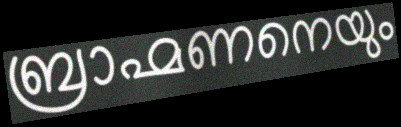
ബ്രാഹ്മണനെയും